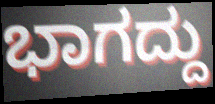
ಭಾಗದ್ದು